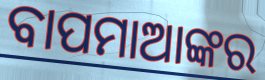
ବାପମାଆଙ୍କର